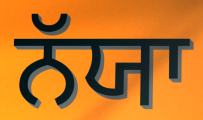
ਨੱਯਾ